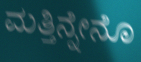
ಮತ್ತಿನ್ನೇನೊ